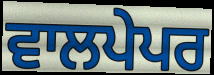
ਵਾਲਪੇਪਰ